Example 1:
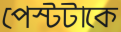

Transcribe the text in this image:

পেস্টটাকে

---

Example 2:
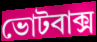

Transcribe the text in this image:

ভোটবাক্স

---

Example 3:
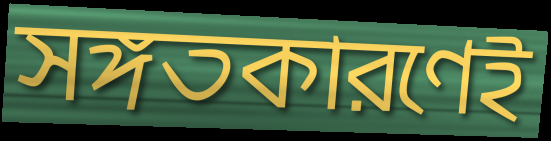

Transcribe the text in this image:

সঙ্গতকারণেই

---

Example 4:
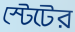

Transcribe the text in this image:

স্টেটের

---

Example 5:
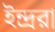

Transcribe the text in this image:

ইন্দ্ররা